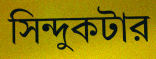
সিন্দুকটার